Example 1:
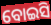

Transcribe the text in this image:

ବୋଇସି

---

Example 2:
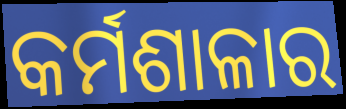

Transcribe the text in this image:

କର୍ମଶାଳାର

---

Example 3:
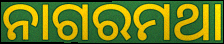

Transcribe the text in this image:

ନାଗରମଥା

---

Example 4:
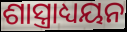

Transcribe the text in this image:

ଶାସ୍ତ୍ରାଧ୍ୟୟନ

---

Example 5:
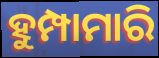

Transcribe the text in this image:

ହୁମ୍ପାମାରି